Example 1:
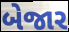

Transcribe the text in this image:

બેજાર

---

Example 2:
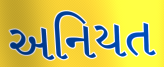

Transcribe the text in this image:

અનિયત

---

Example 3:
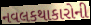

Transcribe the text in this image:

નવલકથાકારોની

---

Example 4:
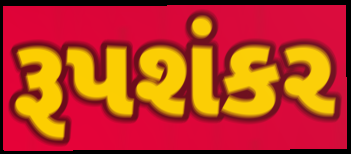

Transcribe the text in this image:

રૂપશંકર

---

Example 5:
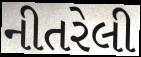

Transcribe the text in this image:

નીતરેલી